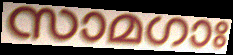
സാമഗാഃ